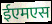
ईएमएस